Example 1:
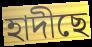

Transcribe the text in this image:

হাদীছে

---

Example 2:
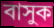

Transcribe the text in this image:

বাসুক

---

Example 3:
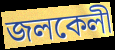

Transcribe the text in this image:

জলকেলী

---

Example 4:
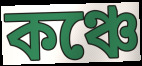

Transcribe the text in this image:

কঞ্চে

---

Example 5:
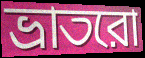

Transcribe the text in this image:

ভ্রাতরো